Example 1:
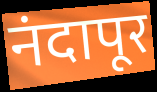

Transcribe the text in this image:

नंदापूर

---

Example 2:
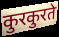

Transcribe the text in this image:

कुरकुरते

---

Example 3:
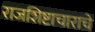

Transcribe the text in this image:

राजशिष्टाचाराचे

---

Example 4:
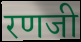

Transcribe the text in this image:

रणजी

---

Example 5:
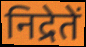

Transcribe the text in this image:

निद्रेतें